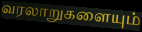
வரலாறுகளையும்